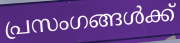
പ്രസംഗങ്ങൾക്ക്